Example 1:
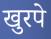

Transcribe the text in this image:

खुरपे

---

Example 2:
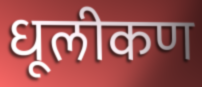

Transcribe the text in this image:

धूलीकण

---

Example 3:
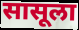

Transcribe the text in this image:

सासूला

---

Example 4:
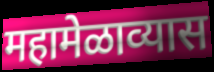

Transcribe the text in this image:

महामेळाव्यास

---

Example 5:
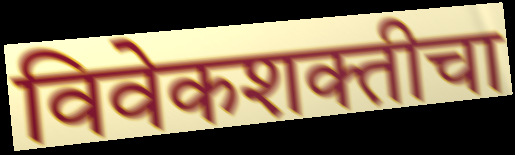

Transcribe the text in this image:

विवेकशक्तीचा